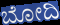
ಬೋದಿ